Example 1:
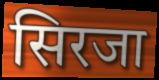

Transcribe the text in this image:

सिरजा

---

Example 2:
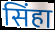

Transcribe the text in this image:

सिंहा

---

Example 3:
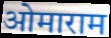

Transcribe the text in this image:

ओमाराम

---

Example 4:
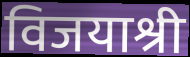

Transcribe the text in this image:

विजयाश्री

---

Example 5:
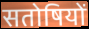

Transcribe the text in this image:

सतोषियों